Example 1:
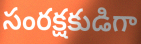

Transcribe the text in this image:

సంరక్షకుడిగా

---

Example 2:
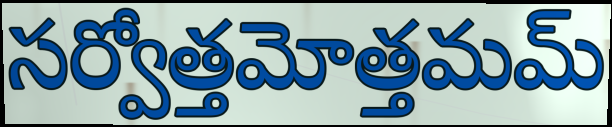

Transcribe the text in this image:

సర్వోత్తమోత్తమమ్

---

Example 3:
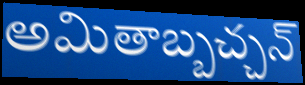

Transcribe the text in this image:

అమితాబ్బచ్చన్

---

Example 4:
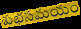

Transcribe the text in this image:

శుభసమయం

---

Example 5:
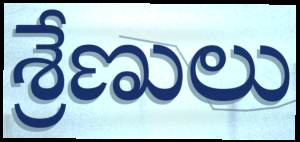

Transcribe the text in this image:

శ్రేణులు